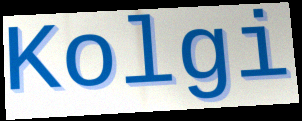
Kolgi